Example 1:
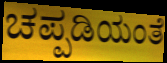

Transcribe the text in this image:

ಚಪ್ಪಡಿಯಂತೆ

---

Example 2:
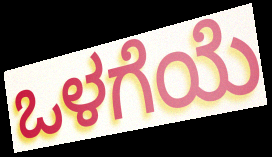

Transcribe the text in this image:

ಒಳಗೆಯೆ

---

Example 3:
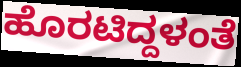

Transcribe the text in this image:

ಹೊರಟಿದ್ದಳಂತೆ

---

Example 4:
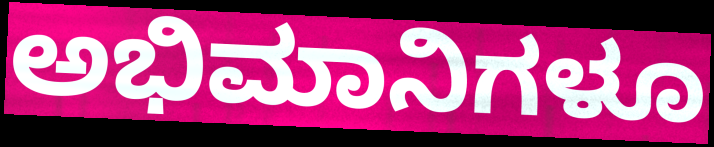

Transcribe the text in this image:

ಅಭಿಮಾನಿಗಳೂ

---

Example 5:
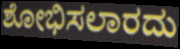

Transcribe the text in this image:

ಶೋಭಿಸಲಾರದು